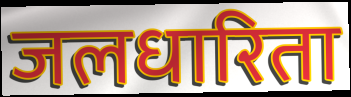
जलधारिता